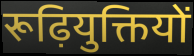
रूढ़ियुक्तियों